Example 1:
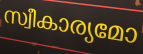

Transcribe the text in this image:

സ്വീകാര്യമോ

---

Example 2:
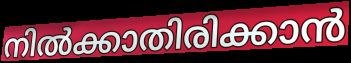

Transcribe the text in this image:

നിൽക്കാതിരിക്കാൻ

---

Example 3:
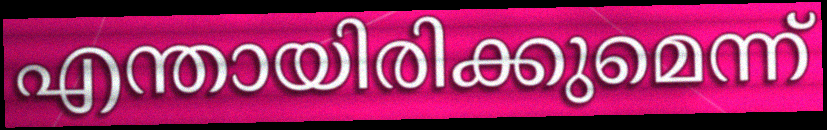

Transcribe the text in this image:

എന്തായിരിക്കുമെന്ന്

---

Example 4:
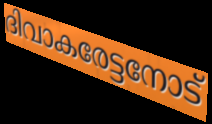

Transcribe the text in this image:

ദിവാകരേട്ടനോട്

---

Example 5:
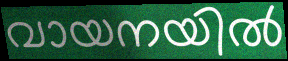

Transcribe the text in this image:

വായനയിൽ